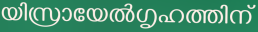
യിസ്രായേൽഗൃഹത്തിന്